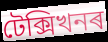
টেক্সিখনৰ